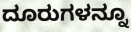
ದೂರುಗಳನ್ನೂ